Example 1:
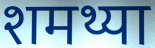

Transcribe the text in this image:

शमथ्या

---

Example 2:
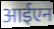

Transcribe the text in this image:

आईएन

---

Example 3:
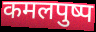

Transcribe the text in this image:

कमलपुष्प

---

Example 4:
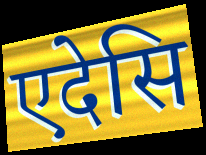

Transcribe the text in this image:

एदेसि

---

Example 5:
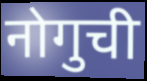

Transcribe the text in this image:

नोगुची